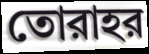
তোরাহর